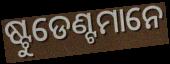
ଷ୍ଟୁଡେଣ୍ଟମାନେ